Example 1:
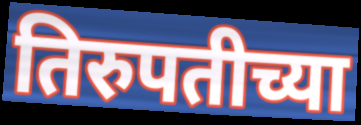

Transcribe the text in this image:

तिरुपतीच्या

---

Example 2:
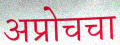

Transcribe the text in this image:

अप्रोचचा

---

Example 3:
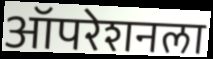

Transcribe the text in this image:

ऑपरेशनला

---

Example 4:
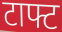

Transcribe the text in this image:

टाफ्ट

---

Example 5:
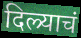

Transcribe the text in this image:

दिल्याचं